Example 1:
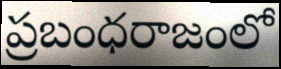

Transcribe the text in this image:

ప్రబంధరాజంలో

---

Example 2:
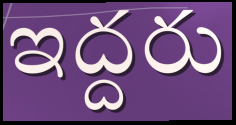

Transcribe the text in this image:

ఇద్దరు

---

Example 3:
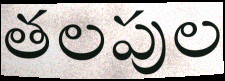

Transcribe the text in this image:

తలపుల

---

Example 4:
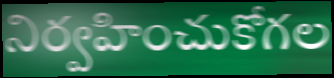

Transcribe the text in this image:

నిర్వహించుకోగల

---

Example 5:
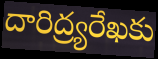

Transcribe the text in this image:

దారిద్ర్యరేఖకు